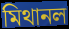
মিথানল